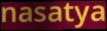
nasatya